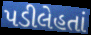
પડીલેહતાં